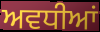
ਅਵਧੀਆਂ